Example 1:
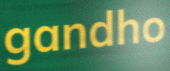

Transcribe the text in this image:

gandho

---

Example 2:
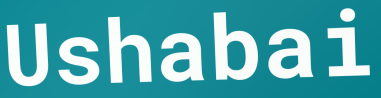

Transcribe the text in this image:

Ushabai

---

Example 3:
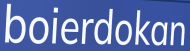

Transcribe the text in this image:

boierdokan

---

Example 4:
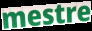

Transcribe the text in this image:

mestre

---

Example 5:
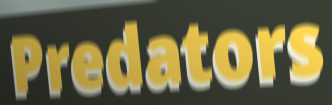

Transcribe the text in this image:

Predators